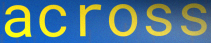
across